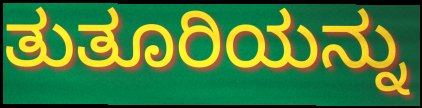
ತುತೂರಿಯನ್ನು